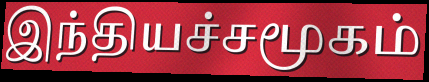
இந்தியச்சமூகம்